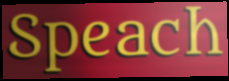
Speach